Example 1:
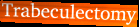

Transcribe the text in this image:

Trabeculectomy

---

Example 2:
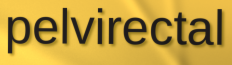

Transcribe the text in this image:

pelvirectal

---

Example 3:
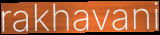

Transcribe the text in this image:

rakhavani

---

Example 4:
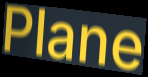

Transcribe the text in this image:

Plane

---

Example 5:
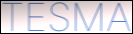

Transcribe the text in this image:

TESMA